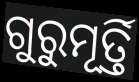
ଗୁରୁମୂର୍ତ୍ତି